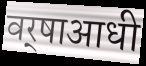
वर्षाआधी